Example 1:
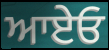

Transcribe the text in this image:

ਆਏਓ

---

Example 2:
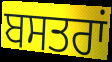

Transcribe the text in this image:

ਬਸਤਰਾਂ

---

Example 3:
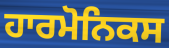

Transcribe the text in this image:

ਹਾਰਮੋਨਿਕਸ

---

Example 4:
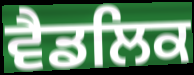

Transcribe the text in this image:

ਵੈਡਲਿਕ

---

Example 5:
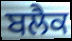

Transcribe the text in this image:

ਬਲੈਕ